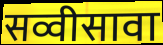
सव्वीसावा